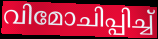
വിമോചിപ്പിച്ച്